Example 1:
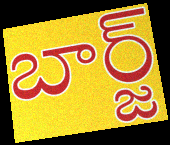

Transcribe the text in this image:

బార్జ్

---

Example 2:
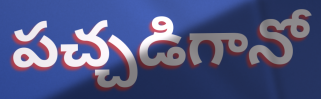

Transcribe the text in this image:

పచ్చడిగానో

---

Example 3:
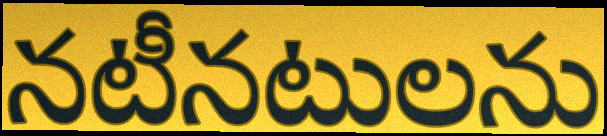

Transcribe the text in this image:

నటీనటులను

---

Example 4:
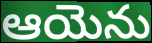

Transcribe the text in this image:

ఆయెను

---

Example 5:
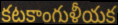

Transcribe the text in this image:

కటకాంగుళీయక